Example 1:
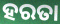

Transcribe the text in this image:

ହରତା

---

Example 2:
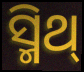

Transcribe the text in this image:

ସ୍ମିଥ୍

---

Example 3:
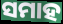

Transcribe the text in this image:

ସମାହ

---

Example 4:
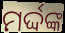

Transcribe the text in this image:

ମର୍ଦ୍ଦଙ୍କ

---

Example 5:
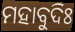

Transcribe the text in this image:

ମହାବୁଦିଃ